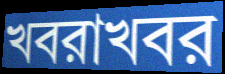
খবরাখবর